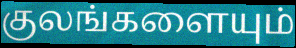
குலங்களையும்